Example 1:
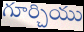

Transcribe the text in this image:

గూర్చియు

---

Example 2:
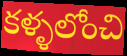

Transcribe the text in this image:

కళ్ళలోంచి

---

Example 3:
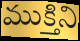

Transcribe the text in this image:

ముక్తిని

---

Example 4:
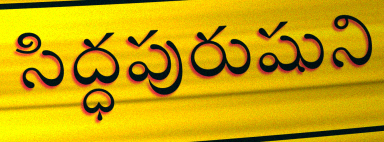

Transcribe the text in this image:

సిద్ధపురుషుని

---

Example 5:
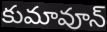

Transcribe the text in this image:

కుమావూన్